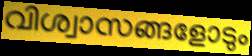
വിശ്വാസങ്ങളോടും